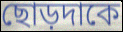
ছোড়দাকে